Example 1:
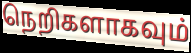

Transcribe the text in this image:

நெறிகளாகவும்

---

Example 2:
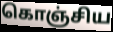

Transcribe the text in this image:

கொஞ்சிய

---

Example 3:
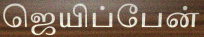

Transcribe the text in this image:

ஜெயிப்பேன்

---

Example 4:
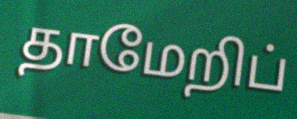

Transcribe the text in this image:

தாமேறிப்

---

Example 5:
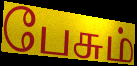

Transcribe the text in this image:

பேசும்